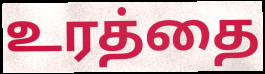
உரத்தை